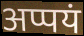
अप्पयं